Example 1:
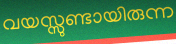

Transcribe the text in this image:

വയസ്സുണ്ടായിരുന്ന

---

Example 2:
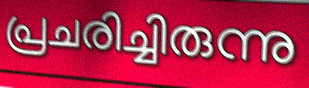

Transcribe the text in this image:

പ്രചരിച്ചിരുന്നു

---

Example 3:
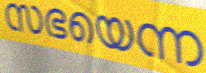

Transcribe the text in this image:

സഭയെന്ന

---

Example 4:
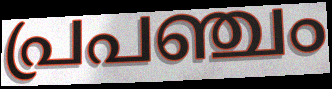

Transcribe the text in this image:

പ്രപഞ്ചം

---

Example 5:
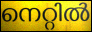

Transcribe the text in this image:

നെറ്റിൽ